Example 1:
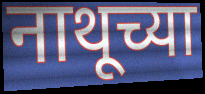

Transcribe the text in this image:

नाथूच्या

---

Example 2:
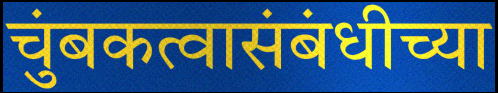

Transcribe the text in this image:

चुंबकत्वासंबंधीच्या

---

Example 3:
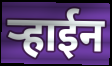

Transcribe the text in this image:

ऱ्हाईन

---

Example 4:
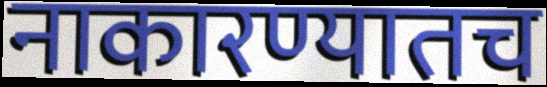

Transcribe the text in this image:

नाकारण्यातच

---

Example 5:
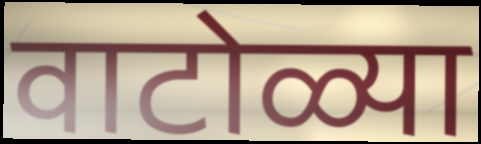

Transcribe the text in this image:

वाटोळ्या